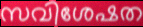
സവിശേഷത